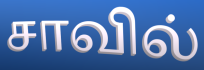
சாவில்